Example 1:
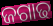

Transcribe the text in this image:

ଜଗାଢ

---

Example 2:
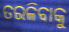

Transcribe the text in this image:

ତରଳିବାକୁ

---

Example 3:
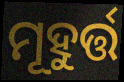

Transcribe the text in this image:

ମୂହୁର୍ତ୍ତ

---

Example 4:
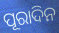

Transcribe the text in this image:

ପୂରାଦିନ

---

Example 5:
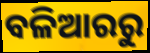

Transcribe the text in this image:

ବଳିଆରରୁ